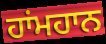
ਹਾਂਮਹਾਨ